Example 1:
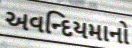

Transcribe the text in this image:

અવન્દિયમાનો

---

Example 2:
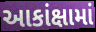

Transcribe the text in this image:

આકાંક્ષામાં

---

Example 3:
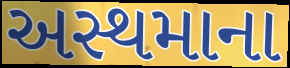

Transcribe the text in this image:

અસ્થમાના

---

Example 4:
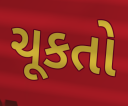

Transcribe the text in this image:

ચૂકતો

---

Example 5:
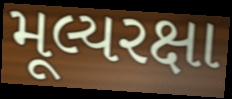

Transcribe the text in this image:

મૂલ્યરક્ષા